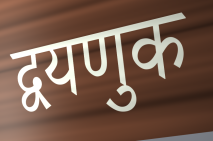
द्वयणुक